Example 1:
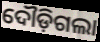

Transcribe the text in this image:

ଦୌଡ଼ିଗଲା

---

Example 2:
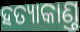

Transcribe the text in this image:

ହତ୍ୟାକାଣ୍ତ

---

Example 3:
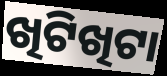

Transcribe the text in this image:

ଖିଟିଖିଟା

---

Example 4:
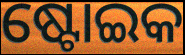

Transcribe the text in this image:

ଷ୍ଟୋଇକ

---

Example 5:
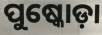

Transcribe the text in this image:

ପୁଷ୍କୋଡ଼ା